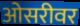
ओसरीवर